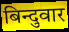
बिन्‍दुवार